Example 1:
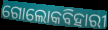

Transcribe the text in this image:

ଗୋଲୋକବିହାରୀ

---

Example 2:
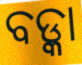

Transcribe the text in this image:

ବଡ୍କା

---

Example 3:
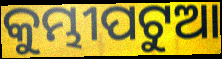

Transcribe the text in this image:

କୁମ୍ଭୀପଟୁଆ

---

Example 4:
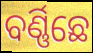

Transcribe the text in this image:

ବର୍ଣ୍ଣିଛେ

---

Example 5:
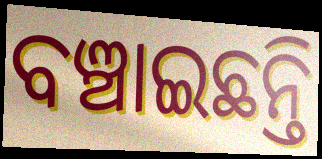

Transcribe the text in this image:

ବଞ୍ଚାଇଛନ୍ତି